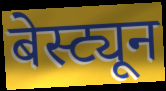
बेस्ट्यून